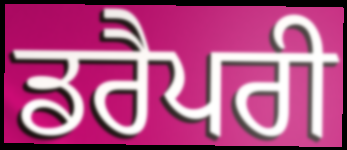
ਡਰੈਪਰੀ